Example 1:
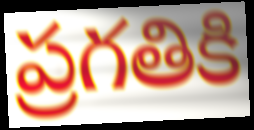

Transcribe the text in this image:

ప్రగతికి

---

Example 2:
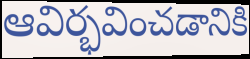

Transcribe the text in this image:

ఆవిర్భవించడానికి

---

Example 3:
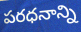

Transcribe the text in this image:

పరధనాన్ని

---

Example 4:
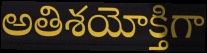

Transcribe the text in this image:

అతిశయోక్తిగా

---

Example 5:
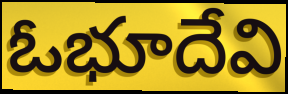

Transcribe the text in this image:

ఓభూదేవి